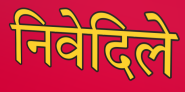
निवेदिले